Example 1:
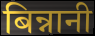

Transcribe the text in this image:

बिन्नानी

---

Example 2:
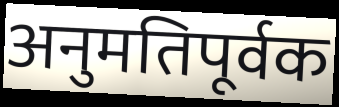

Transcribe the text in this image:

अनुमतिपूर्वक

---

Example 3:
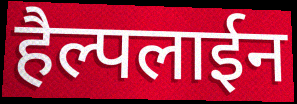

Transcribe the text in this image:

हैल्पलाईन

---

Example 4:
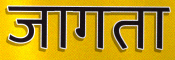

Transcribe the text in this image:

जागता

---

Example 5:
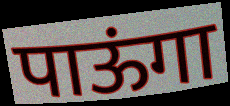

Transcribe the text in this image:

पाऊंगा